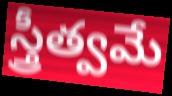
స్త్రీత్వమే